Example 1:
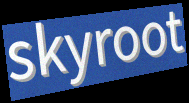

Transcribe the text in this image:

skyroot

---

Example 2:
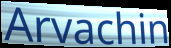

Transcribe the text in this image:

Arvachin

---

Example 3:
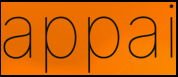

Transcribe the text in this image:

appai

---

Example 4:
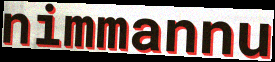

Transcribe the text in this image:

nimmannu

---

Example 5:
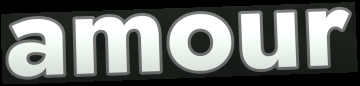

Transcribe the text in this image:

amour